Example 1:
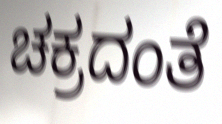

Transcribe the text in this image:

ಚಕ್ರದಂತೆ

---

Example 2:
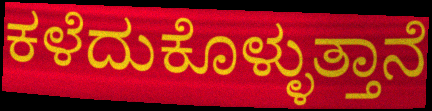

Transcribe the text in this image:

ಕಳೆದುಕೊಳ್ಳುತ್ತಾನೆ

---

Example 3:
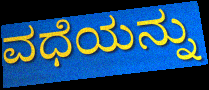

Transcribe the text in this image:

ವಧೆಯನ್ನು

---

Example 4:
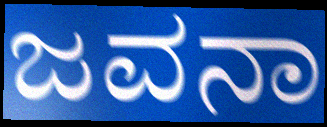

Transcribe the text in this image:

ಜವನಾ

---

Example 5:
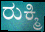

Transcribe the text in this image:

ರುಕ್ಮಿ